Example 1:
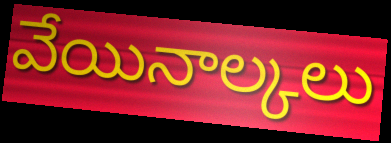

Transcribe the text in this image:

వేయినాల్కలు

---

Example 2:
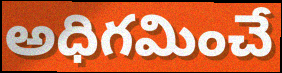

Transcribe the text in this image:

అధిగమించే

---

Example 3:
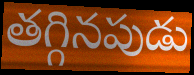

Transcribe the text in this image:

తగ్గినపుడు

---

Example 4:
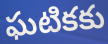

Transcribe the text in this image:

ఘటికకు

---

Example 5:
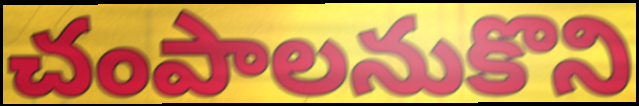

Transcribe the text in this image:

చంపాలనుకొని